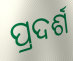
ପ୍ରଦର୍ଶ